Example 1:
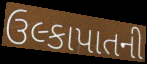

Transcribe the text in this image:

ઉલ્કાપાતની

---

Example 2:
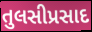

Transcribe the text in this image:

તુલસીપ્રસાદ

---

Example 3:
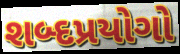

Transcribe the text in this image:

શબ્દપ્રયોગો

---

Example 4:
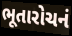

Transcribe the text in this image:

ભૂતારોચનં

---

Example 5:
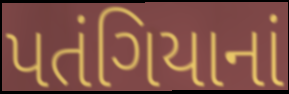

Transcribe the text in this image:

પતંગિયાનાં